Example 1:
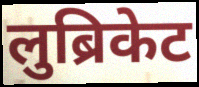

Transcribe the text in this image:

लुब्रिकेट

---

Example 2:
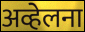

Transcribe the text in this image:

अव्हेलना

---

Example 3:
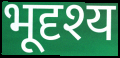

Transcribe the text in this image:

भूदृश्य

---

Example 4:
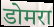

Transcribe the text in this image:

डोमरा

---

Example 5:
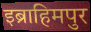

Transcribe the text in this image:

इब्राहिमपुर